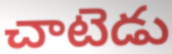
చాటెడు